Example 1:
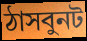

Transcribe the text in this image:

ঠাসবুনট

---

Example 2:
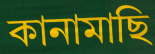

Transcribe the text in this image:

কানামাছি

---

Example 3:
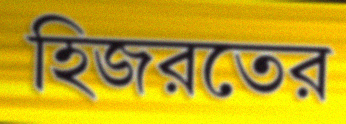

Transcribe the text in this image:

হিজরতের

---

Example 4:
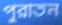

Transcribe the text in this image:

পুরাতন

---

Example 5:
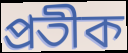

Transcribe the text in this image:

প্রতীক